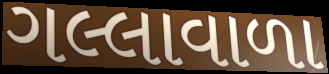
ગલ્લાવાળા